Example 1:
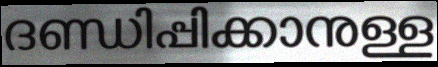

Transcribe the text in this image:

ദണ്ഡിപ്പിക്കാനുള്ള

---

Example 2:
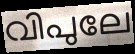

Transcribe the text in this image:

വിപുലേ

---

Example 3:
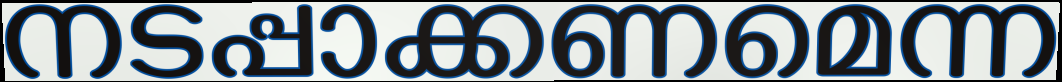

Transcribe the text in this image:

നടപ്പാക്കണമെന്ന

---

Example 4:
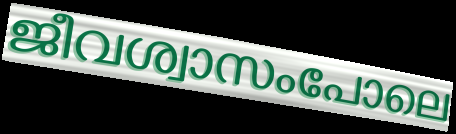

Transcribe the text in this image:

ജീവശ്വാസംപോലെ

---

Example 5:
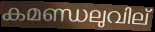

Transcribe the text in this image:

കമണ്ഡലുവില്